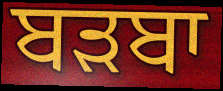
ਬੜਬਾ